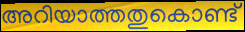
അറിയാത്തതുകൊണ്ട്